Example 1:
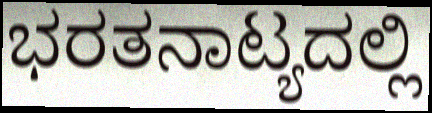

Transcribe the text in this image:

ಭರತನಾಟ್ಯದಲ್ಲಿ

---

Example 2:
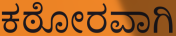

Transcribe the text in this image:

ಕಠೋರವಾಗಿ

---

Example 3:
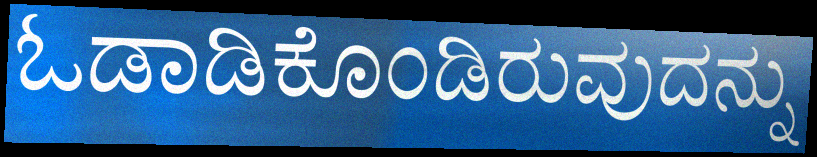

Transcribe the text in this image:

ಓಡಾಡಿಕೊಂಡಿರುವುದನ್ನು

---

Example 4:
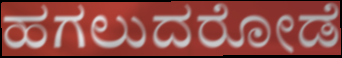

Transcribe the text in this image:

ಹಗಲುದರೋಡೆ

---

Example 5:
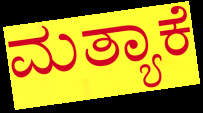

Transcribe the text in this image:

ಮತ್ಯಾಕೆ